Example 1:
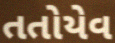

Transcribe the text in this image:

તતોયેવ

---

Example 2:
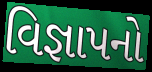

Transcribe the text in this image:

વિજ્ઞાપનો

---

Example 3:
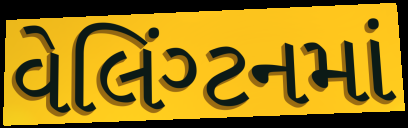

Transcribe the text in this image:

વેલિંગ્ટનમાં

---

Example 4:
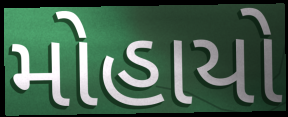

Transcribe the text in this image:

મોહાયો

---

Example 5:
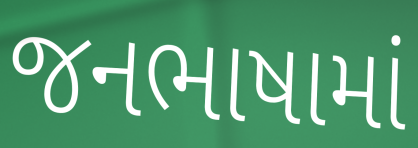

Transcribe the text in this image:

જનભાષામાં